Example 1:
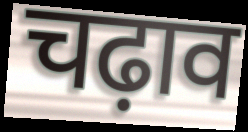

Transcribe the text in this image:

चढ़ाव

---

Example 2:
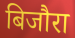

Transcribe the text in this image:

बिजौरा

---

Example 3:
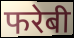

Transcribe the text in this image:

फरेबी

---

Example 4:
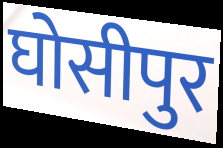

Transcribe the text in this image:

घोसीपुर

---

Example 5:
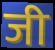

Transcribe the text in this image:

जी